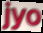
jyo